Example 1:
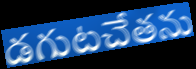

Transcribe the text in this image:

డగుటచేతను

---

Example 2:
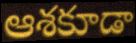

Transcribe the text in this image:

ఆశకూడా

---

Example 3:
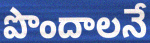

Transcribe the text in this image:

పొందాలనే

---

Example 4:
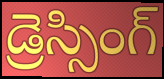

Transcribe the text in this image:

డ్రెస్సింగ్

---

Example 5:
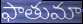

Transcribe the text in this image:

ఫాతుమా